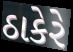
ઠાકેરે